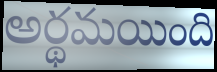
అర్థమయింది